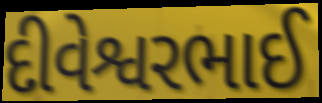
દીવેશ્વરભાઈ